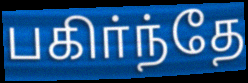
பகிர்ந்தே